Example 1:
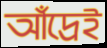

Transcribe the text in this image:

আঁদ্রেই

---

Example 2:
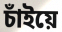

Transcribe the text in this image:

চাঁইয়ে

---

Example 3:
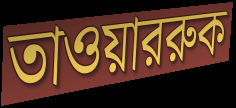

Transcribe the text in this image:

তাওয়াররুক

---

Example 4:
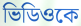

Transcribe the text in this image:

ভিডিওকে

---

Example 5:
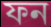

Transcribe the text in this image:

ফন